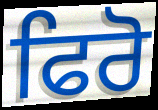
ਫਿਰੋ